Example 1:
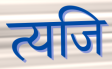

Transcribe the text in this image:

त्यजि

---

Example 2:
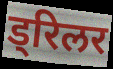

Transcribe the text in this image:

ड्रिलर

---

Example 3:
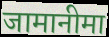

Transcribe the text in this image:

जामानीमा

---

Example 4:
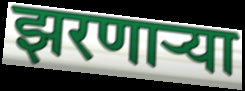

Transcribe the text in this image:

झरणाऱ्या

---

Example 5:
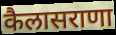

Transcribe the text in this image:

कैलासराणा